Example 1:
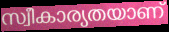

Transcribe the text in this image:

സ്വീകാര്യതയാണ്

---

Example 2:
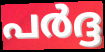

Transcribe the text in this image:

പർദ്ദ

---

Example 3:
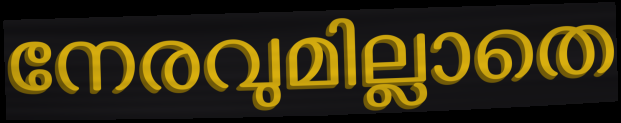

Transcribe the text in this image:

നേരവുമില്ലാതെ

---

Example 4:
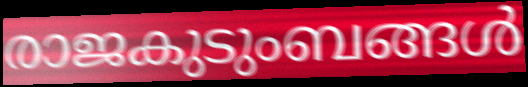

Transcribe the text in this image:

രാജകുടുംബങ്ങൾ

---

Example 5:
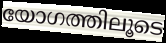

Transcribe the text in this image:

യോഗത്തിലൂടെ